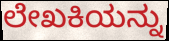
ಲೇಖಕಿಯನ್ನು